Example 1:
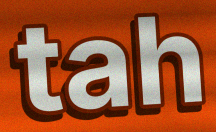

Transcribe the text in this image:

tah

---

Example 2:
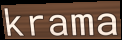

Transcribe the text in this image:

krama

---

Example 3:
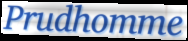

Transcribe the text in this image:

Prudhomme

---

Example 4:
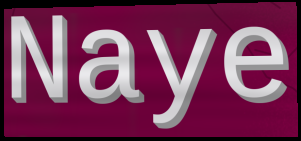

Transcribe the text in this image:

Naye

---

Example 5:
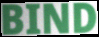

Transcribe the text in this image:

BIND